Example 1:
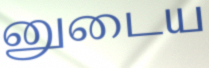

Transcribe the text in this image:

னுடைய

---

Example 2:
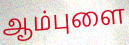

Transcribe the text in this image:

ஆம்புளை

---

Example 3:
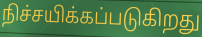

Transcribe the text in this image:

நிச்சயிக்கப்படுகிறது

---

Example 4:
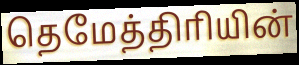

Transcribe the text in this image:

தெமேத்திரியின்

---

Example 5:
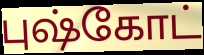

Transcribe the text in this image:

புஷ்கோட்